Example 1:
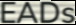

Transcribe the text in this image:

EADs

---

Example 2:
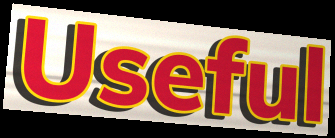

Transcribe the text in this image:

Useful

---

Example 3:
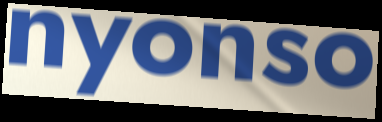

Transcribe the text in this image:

nyonso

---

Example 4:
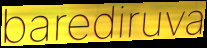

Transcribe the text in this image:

barediruva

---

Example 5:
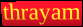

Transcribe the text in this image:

thrayam